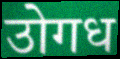
उोगध